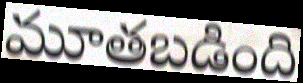
మూతబడింది